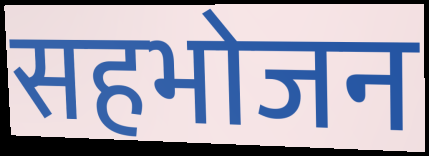
सहभोजन